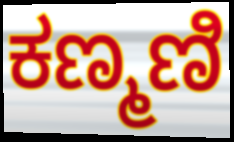
ಕಣ್ಮಣಿ